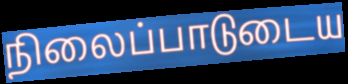
நிலைப்பாடுடைய